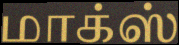
மாக்ஸ்